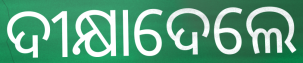
ଦୀକ୍ଷାଦେଲେ